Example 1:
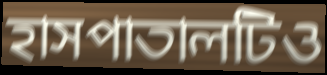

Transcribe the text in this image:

হাসপাতালটিও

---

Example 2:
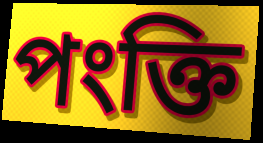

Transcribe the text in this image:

পংক্তি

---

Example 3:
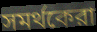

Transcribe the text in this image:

সমর্থকেরা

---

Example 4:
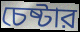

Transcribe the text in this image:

চেষ্টার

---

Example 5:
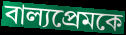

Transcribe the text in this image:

বাল্যপ্রেমকে